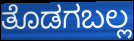
ತೊಡಗಬಲ್ಲ